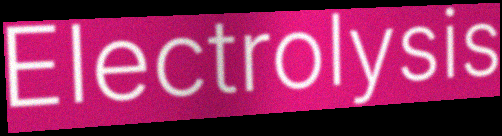
Electrolysis